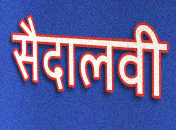
सैदालवी